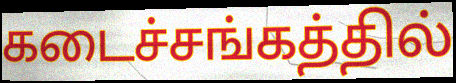
கடைச்சங்கத்தில்